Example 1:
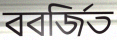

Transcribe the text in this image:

ববর্জিত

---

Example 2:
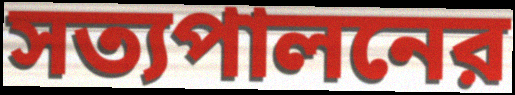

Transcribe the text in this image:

সত্যপালনের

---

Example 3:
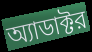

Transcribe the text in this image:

অ্যাডাক্টর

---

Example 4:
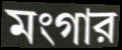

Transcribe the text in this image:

মংগার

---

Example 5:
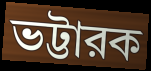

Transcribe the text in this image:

ভট্টারক